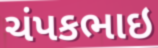
ચંપકભાઇ